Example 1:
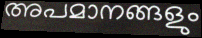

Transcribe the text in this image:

അപമാനങ്ങളും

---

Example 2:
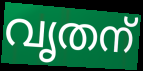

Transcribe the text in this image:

വൃതന്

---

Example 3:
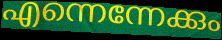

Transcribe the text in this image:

എന്നെന്നേക്കും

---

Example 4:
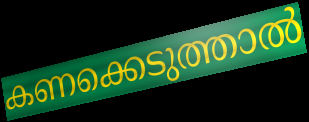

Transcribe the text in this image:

കണക്കെടുത്താൽ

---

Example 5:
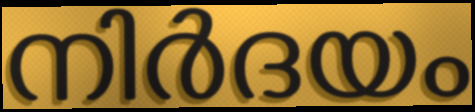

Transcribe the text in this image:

നിർദയം